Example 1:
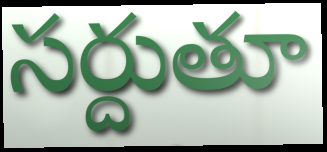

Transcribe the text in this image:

సర్దుతూ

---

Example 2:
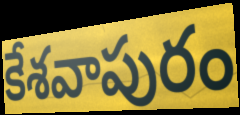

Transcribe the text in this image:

కేశవాపురం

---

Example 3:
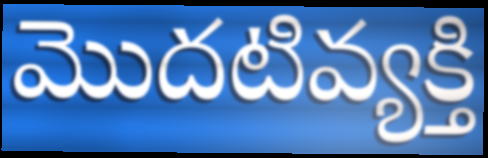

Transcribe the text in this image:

మొదటివ్యక్తి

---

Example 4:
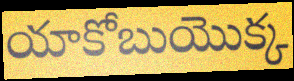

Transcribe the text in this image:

యాకోబుయొక్క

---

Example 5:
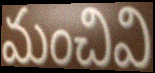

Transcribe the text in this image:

మంచివి